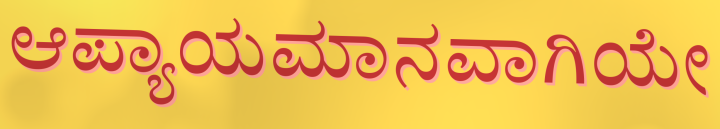
ಆಪ್ಯಾಯಮಾನವಾಗಿಯೇ